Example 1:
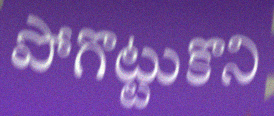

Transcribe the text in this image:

పోగొట్టుకొని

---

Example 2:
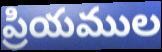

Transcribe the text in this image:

ప్రియముల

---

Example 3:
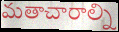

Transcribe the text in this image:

మతాచారాల్ని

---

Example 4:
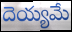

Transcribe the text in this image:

దెయ్యమే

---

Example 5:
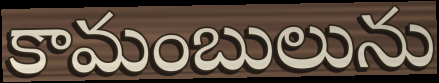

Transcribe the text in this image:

కామంబులును